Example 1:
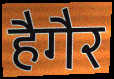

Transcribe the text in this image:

हैगैर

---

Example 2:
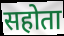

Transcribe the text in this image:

सहोता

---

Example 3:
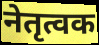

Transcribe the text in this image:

नेतृत्वक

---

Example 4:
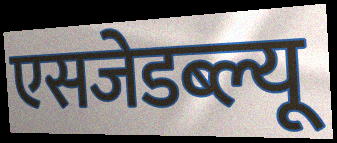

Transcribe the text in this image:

एसजेडब्ल्यू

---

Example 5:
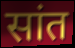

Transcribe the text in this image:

सांत